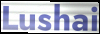
Lushai